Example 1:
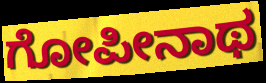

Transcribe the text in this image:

ಗೋಪೀನಾಥ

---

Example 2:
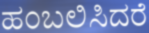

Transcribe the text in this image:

ಹಂಬಲಿಸಿದರೆ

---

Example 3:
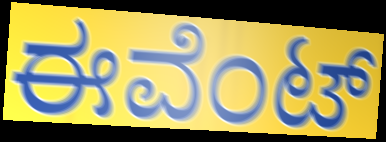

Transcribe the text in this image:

ಈವೆಂಟ್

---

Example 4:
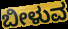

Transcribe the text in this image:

ಬೀಳುವ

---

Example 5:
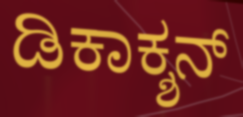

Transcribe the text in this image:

ಡಿಕಾಕ್ಶನ್